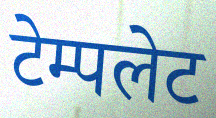
टेम्पलेट